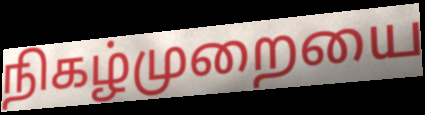
நிகழ்முறையை